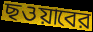
ছওয়াবের